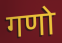
गणो